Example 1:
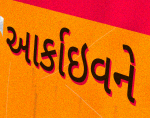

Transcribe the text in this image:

આર્કાઇવને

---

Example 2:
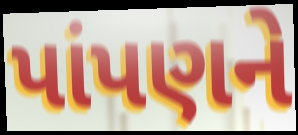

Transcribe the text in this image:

પાંપણને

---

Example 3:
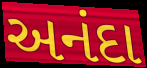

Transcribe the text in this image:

અનંદા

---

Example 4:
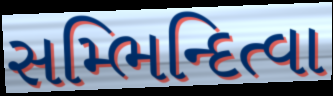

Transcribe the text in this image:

સમ્ભિન્દિત્વા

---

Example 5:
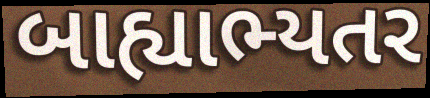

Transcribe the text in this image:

બાહ્યાભ્યતર